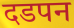
दडपन